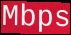
Mbps